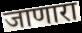
जाणारा